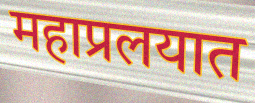
महाप्रलयात